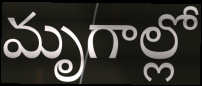
మృగాల్లో